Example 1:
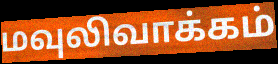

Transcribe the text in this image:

மவுலிவாக்கம்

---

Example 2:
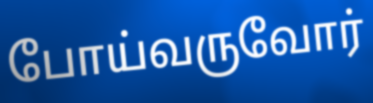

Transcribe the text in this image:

போய்வருவோர்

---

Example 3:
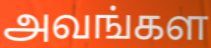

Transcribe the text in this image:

அவங்கள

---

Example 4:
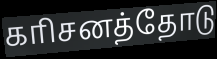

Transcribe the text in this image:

கரிசனத்தோடு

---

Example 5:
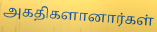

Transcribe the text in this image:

அகதிகளானார்கள்